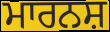
ਮਾਰਨਸ਼